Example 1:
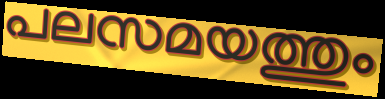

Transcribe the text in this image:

പലസമയത്തും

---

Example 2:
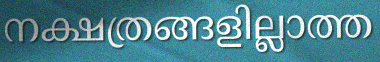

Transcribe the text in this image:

നക്ഷത്രങ്ങളില്ലാത്ത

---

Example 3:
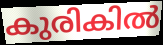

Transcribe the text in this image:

കുരികിൽ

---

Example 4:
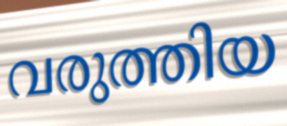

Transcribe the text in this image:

വരുത്തിയ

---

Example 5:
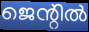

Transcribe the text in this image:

ജെന്റിൽ